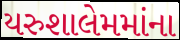
યરુશાલેમમાંના